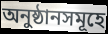
অনুষ্ঠানসমূহে